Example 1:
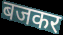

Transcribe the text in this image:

बजकर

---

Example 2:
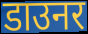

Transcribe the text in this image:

डाउनर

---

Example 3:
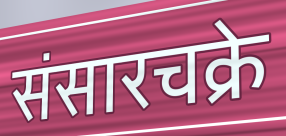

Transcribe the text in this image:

संसारचक्रे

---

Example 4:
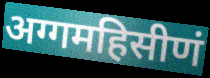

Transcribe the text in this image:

अग्गमहिसीणं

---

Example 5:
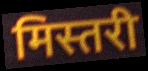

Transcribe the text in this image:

मिस्तरी